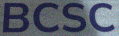
BCSC